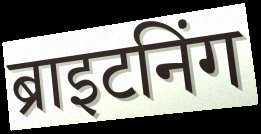
ब्राइटनिंग